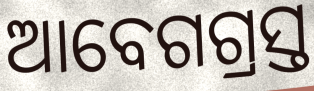
ଆବେଗଗ୍ରସ୍ତ